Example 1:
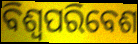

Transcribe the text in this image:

ବିଶ୍ୱପରିବେଶ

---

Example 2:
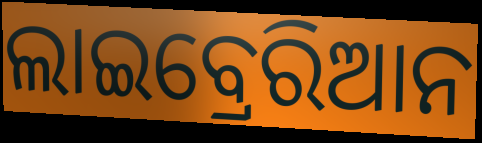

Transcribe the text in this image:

ଲାଇବ୍ରେରିଆନ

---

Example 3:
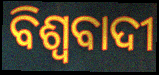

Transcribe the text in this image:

ବିଶ୍ବବାଦୀ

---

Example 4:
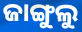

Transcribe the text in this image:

ଜାଙ୍ଗୁଲୁ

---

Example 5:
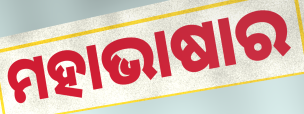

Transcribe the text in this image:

ମହାଭାଷାର